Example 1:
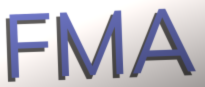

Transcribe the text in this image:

FMA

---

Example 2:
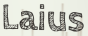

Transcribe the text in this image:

Laius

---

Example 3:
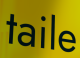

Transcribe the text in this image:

taile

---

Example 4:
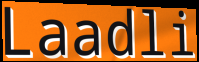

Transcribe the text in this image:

Laadli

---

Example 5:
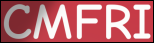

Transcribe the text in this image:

CMFRI